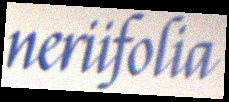
neriifolia